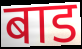
बाड